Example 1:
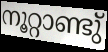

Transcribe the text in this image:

നൂറ്റാണ്ടു്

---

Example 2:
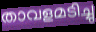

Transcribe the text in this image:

താവളമടിച്ചു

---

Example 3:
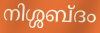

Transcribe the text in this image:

നിശ്ശബ്ദം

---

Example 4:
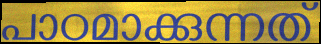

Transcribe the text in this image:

പാഠമാക്കുന്നത്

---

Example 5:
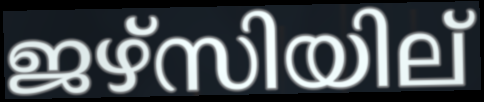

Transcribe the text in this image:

ജഴ്സിയില്